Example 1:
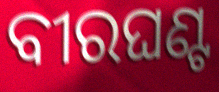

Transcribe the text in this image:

ବୀରଘଣ୍ଟ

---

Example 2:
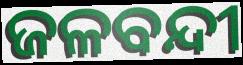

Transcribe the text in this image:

ଜଳବନ୍ଦୀ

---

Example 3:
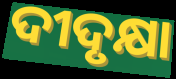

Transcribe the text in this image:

ଦୀଦୃକ୍ଷା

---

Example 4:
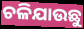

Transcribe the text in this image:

ଚଳିଯାଉଛୁ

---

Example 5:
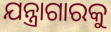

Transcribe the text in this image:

ଯନ୍ତ୍ରାଗାରକୁ